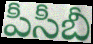
పీసీబీ